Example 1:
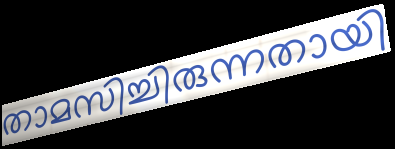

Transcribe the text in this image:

താമസിച്ചിരുന്നതായി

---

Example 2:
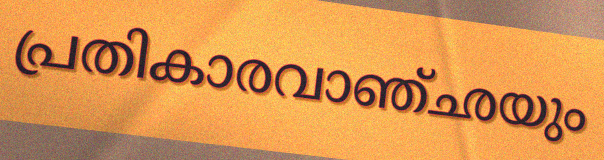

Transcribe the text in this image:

പ്രതികാരവാഞ്ഛയും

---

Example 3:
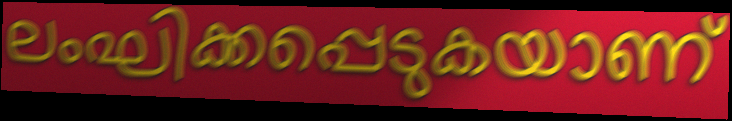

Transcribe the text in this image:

ലംഘിക്കപ്പെടുകയാണ്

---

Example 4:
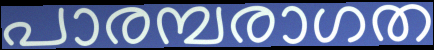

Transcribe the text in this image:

പാരമ്പരാഗത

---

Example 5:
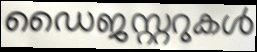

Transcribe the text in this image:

ഡൈജസ്റ്ററുകൾ